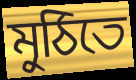
মুঠিতে